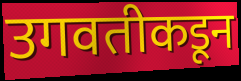
उगवतीकडून